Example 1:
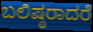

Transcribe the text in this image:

ಬಲಿಷ್ಠರಾದರೆ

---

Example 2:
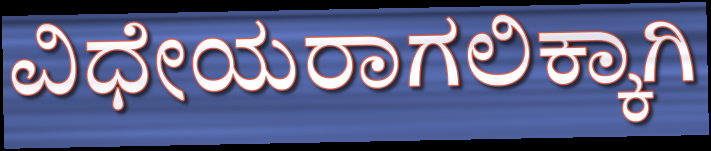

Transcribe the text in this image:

ವಿಧೇಯರಾಗಲಿಕ್ಕಾಗಿ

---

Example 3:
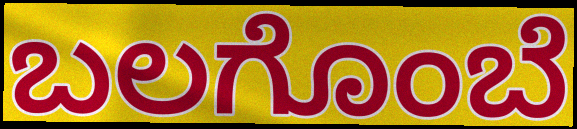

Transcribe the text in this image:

ಬಲಗೊಂಬೆ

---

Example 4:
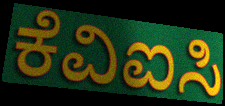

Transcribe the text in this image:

ಕೆವಿಐಸಿ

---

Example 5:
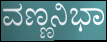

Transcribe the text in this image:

ವಣ್ಣನಿಭಾ